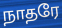
நாதரே